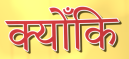
क्योँकि